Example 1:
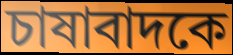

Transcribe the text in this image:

চাষাবাদকে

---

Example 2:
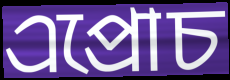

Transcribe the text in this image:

এপ্রোচ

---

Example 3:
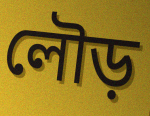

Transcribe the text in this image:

লৌড়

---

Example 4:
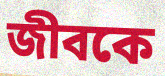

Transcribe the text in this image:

জীবকে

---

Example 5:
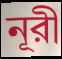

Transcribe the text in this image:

নূরী